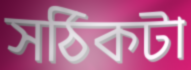
সঠিকটা